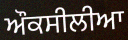
ਔਕਸੀਲੀਆ